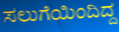
ಸಲುಗೆಯಿಂದಿದ್ದ